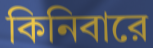
কিনিবারে